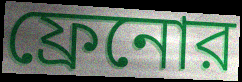
ফ্রেনোর